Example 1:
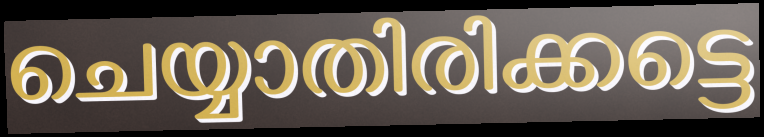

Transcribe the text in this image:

ചെയ്യാതിരിക്കട്ടെ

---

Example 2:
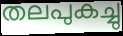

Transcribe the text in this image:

തലപുകച്ചു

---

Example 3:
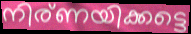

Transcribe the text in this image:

നിര്ണയിക്കട്ടെ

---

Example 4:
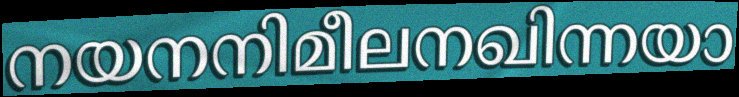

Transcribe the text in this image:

നയനനിമീലനഖിന്നയാ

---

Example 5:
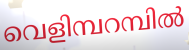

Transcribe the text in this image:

വെളിമ്പറമ്പിൽ